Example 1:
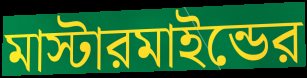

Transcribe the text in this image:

মাস্টারমাইন্ডের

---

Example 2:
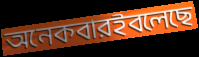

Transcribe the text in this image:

অনেকবারইবলেছে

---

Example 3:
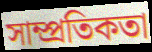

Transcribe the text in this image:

সাম্প্রতিকতা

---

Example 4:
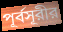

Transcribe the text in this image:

পূর্বসূরীর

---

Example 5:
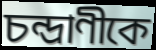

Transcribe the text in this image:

চন্দ্রাণীকে